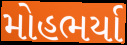
મોહભર્યા